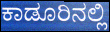
ಕಾಡೂರಿನಲ್ಲಿ